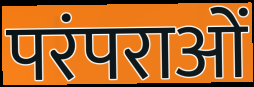
परंपराओं